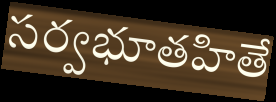
సర్వభూతహితే